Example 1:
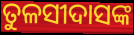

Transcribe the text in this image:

ତୁଳସୀଦାସଙ୍କ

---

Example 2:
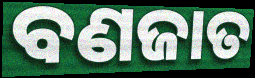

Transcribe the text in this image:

ବଣଜାତ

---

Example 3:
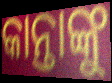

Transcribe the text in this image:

କାନ୍ତାଙ୍କୁ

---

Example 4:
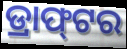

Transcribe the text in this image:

ଡ୍ରାଫ୍‌ଟର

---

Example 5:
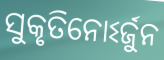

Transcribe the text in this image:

ସୁକୃତିନୋଽର୍ଜୁନ